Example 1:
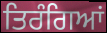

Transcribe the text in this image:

ਤਿਰੰਗਿਆਂ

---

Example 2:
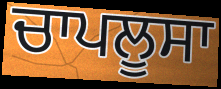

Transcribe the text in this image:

ਚਾਪਲੂਸਾ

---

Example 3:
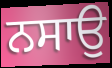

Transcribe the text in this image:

ਨਸਾਉ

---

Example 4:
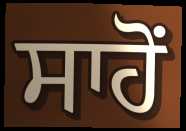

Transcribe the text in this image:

ਸਾਹੋਂ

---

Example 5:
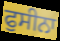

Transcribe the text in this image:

ਫੁਸੀਨਾ